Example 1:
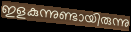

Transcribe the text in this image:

ഇളകുന്നുണ്ടായിരുന്നു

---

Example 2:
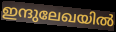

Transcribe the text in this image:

ഇന്ദുലേഖയിൽ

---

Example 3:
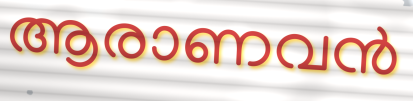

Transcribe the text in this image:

ആരാണവൻ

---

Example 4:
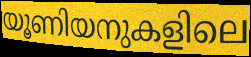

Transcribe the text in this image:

യൂണിയനുകളിലെ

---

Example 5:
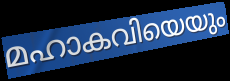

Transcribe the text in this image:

മഹാകവിയെയും